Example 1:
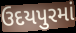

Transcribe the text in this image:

ઉદયપુરમાં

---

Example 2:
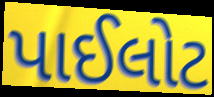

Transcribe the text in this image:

પાઈલોટ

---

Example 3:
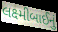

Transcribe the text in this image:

લક્ષ્મીબાઈનું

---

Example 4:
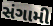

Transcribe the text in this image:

સંગામી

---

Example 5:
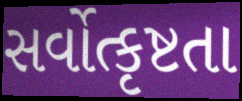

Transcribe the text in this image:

સર્વોત્કૃષ્ટતા